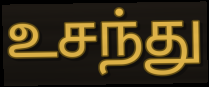
உசந்து